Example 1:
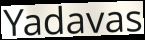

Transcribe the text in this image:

Yadavas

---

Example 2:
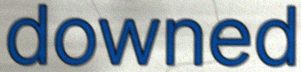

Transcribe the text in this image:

downed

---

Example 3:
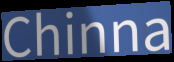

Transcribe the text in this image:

Chinna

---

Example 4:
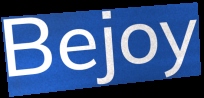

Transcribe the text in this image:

Bejoy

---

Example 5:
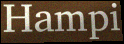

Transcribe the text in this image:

Hampi